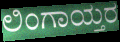
ಲಿಂಗಾಯ್ತರ